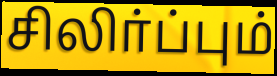
சிலிர்ப்பும்